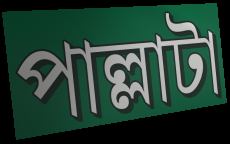
পাল্লাটা